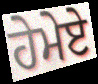
ਹੇਮੇਏ